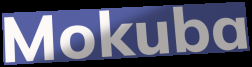
Mokuba